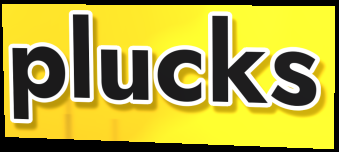
plucks